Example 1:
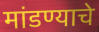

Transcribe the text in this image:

मांडण्याचे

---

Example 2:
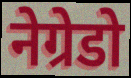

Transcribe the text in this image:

नेग्रेडो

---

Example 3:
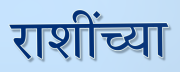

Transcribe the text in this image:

राशींच्या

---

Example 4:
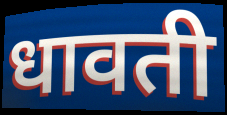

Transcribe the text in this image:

धावती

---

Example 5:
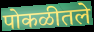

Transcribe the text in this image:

पोकळीतले